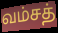
வம்சத்